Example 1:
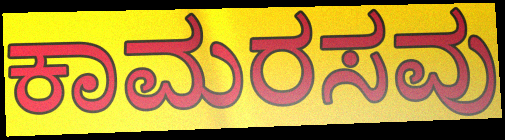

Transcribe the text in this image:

ಕಾಮರಸವು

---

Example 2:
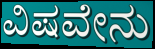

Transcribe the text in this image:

ವಿಷವೇನು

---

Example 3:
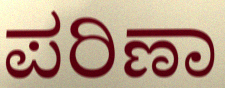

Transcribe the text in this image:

ಪರಿಣಾ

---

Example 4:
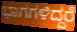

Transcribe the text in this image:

ಭಾಗಗಳಿದ್ದರೆ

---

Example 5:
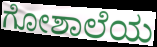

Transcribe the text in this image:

ಗೋಶಾಲೆಯ